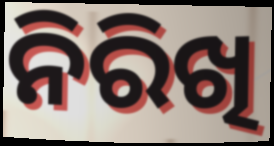
ନିରିଖି